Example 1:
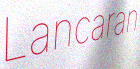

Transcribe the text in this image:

Lancaran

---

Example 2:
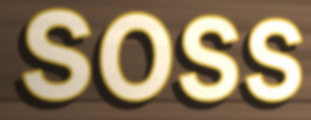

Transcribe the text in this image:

soss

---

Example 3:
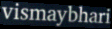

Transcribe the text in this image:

vismaybhari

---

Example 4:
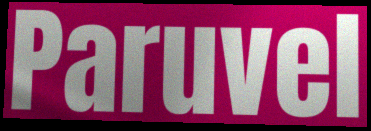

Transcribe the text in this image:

Paruvel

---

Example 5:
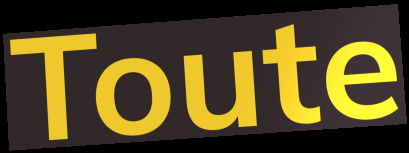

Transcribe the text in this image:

Toute